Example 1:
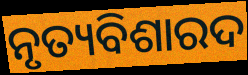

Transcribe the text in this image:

ନୃତ୍ୟବିଶାରଦ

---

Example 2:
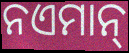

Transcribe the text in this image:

ନଏମାନ୍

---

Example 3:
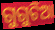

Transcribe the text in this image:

ଗୁଗୁଚିଆ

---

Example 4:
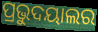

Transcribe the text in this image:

ପ୍ରଭୁଦୟାଲର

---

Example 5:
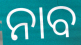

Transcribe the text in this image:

ନାବ